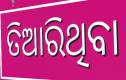
ତିଆରିଥିବା